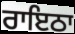
ਰਾਇਠਾ